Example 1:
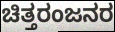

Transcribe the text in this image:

ಚಿತ್ತರಂಜನರ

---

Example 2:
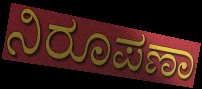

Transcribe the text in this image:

ನಿರೂಪಣಾ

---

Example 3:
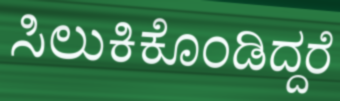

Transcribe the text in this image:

ಸಿಲುಕಿಕೊಂಡಿದ್ದರೆ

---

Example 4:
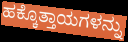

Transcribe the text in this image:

ಹಕ್ಕೊತ್ತಾಯಗಳನ್ನು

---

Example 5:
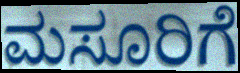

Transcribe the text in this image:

ಮಸೂರಿಗೆ